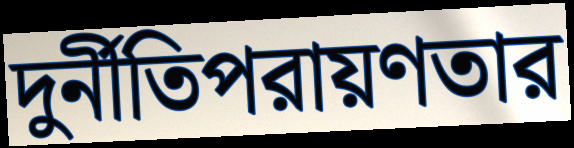
দুর্নীতিপরায়ণতার